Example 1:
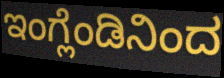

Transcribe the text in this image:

ಇಂಗ್ಲೆಂಡಿನಿಂದ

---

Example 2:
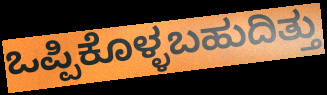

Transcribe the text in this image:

ಒಪ್ಪಿಕೊಳ್ಳಬಹುದಿತ್ತು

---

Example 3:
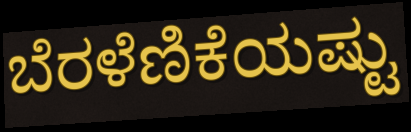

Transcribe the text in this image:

ಬೆರಳೆಣಿಕೆಯಷ್ಟು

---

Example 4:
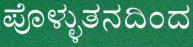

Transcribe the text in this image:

ಪೊಳ್ಳುತನದಿಂದ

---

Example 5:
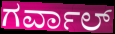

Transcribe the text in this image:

ಗರ್ವಾಲ್